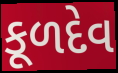
કૂળદેવ